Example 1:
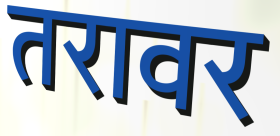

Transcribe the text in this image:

तरावर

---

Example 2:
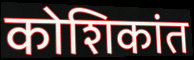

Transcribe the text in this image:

कोशिकांत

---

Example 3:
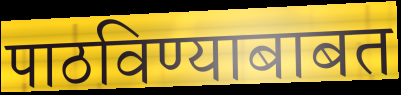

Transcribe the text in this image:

पाठविण्याबाबत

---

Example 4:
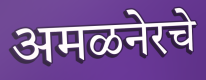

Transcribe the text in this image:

अमळनेरचे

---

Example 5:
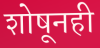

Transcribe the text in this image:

शोषूनही